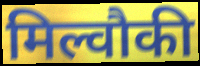
मिल्वौकी